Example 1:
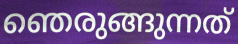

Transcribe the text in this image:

ഞെരുങ്ങുന്നത്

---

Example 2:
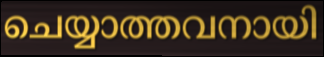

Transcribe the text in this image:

ചെയ്യാത്തവനായി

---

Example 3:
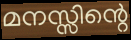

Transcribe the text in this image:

മനസ്സിന്റെ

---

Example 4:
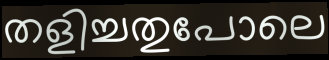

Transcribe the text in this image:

തളിച്ചതുപോലെ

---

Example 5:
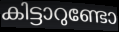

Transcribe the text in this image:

കിട്ടാറുണ്ടോ